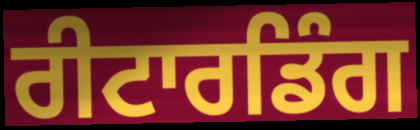
ਰੀਟਾਰਡਿੰਗ